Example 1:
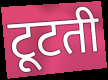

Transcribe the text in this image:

टूटती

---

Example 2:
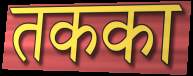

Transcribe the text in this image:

तकका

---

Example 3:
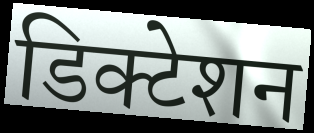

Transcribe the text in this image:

डिक्टेशन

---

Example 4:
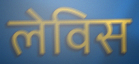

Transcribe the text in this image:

लेविस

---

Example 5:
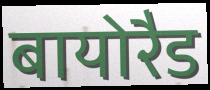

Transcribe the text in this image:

बायोरैड